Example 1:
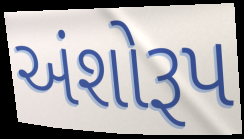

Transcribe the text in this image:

અંશોરૂપ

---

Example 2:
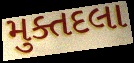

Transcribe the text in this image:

મુક્તદલા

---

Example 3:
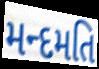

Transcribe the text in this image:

મન્દમતિ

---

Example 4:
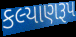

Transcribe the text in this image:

કલ્યાણરૂપ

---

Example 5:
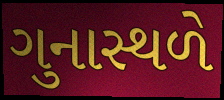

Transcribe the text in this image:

ગુનાસ્થળે